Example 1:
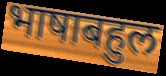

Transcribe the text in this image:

भाषाबहुल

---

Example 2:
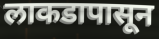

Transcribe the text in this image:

लाकडापासून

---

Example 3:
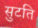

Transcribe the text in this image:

सुटति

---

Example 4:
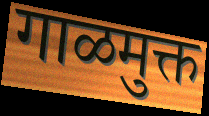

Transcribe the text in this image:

गाळमुक्त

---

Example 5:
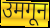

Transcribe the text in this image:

उमगून